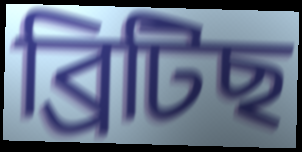
ব্ৰিটিছ